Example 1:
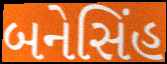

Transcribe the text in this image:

બનેસિંહ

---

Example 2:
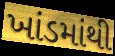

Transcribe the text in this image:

ખાંડમાંથી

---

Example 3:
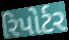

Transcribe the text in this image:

રિપોર્ટર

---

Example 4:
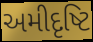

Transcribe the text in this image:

અમીદૃષ્ટિ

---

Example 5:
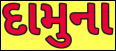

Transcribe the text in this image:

દામુના